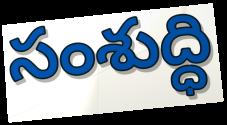
సంశుద్ధి